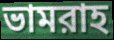
ভামরাহ